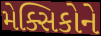
મેક્સિકોને